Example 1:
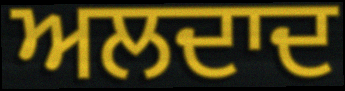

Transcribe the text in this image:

ਅਲਦਾਦ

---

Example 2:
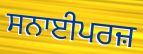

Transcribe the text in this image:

ਸਨਾਈਪਰਜ਼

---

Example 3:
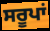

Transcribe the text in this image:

ਸਰੂਪਾਂ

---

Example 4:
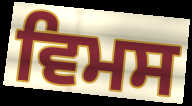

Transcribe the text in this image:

ਵਿਮਸ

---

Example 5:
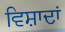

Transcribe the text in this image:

ਵਿਸ਼ਾਦਾਂ